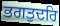
ਭਗਤੁਦਰਿ